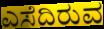
ಎಸೆದಿರುವ